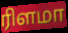
ரிளமா